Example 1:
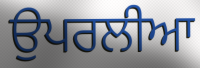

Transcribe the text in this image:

ਉਪਰਲੀਆ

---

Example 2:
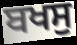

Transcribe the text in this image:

ਬਖਸੁ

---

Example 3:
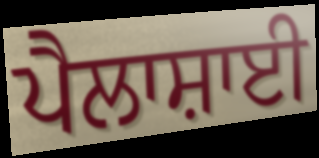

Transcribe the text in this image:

ਪੈਲਾਸ਼ਾਈ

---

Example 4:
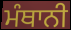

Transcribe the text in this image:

ਮੰਥਾਨੀ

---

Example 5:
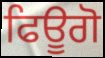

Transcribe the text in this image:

ਫਿਊਗੋ